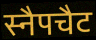
स्नैपचैट